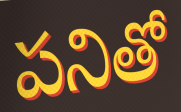
పనితో